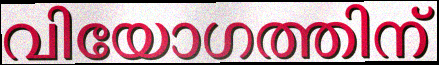
വിയോഗത്തിന്